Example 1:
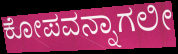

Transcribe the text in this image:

ಕೋಪವನ್ನಾಗಲೀ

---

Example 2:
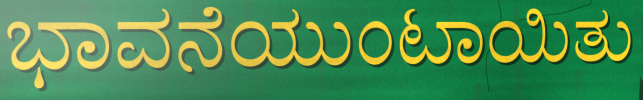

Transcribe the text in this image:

ಭಾವನೆಯುಂಟಾಯಿತು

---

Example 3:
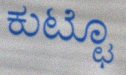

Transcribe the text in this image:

ಕುಟ್ಟೊ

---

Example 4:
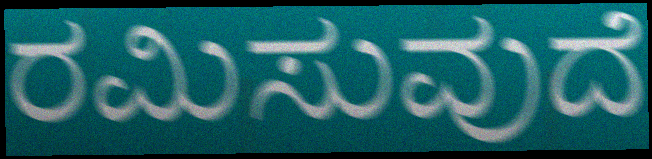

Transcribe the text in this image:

ರಮಿಸುವುದೆ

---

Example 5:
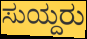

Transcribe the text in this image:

ಸುಯ್ದರು